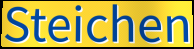
Steichen